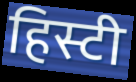
हिस्टी